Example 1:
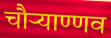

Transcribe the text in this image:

चौऱ्याण्णव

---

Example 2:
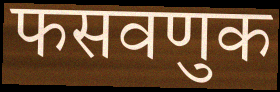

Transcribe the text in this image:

फसवणुक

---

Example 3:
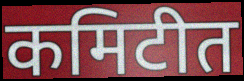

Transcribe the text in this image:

कमिटीत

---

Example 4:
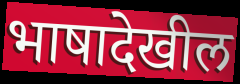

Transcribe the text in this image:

भाषादेखील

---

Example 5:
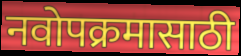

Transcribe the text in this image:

नवोपक्रमासाठी